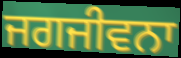
ਜਗਜੀਵਨਾ